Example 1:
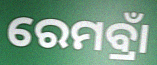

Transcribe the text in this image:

ରେମବ୍ରାଁ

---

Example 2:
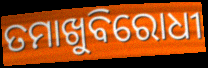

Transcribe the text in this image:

ତମାଖୁବିରୋଧୀ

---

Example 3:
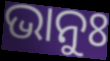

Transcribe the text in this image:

ଭାନୁଃ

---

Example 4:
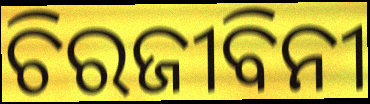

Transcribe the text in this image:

ଚିରଜୀବିନୀ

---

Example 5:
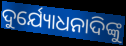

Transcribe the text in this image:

ଦୁର୍ଯ୍ୟୋଧନାଦିଙ୍କୁ